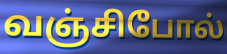
வஞ்சிபோல்